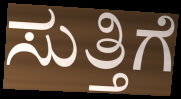
ಸುತ್ತಿಗೆ